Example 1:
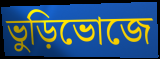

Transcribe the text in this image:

ভুড়িভোজে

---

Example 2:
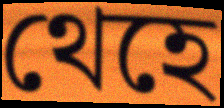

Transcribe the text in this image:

থেহে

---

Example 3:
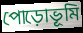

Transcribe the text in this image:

পোড়োভূমি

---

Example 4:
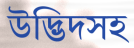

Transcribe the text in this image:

উদ্ভিদসহ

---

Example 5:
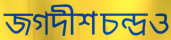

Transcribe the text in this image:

জগদীশচন্দ্রও